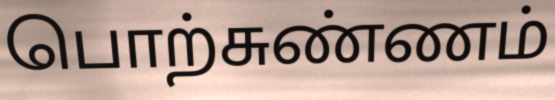
பொற்சுண்ணம்